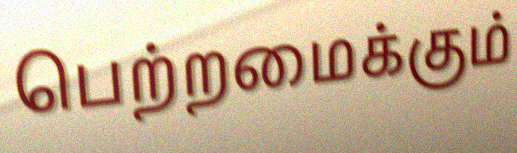
பெற்றமைக்கும்